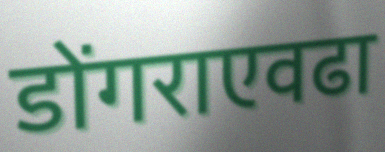
डोंगराएवढा